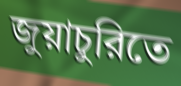
জুয়াচুরিতে